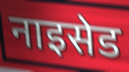
नाइसेड